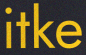
itke